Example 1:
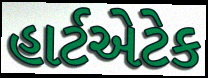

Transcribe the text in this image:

હાર્ટએટેક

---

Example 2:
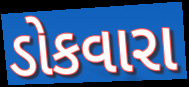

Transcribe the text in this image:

ડોકવારા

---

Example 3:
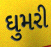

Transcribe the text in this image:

ઘુમરી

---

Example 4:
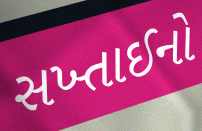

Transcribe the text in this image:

સખ્તાઈનો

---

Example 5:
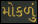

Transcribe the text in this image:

મોકળું